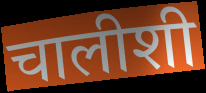
चालीशी